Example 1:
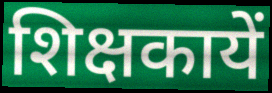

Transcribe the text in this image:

शिक्षकायें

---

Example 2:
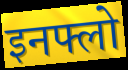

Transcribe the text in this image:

इनफ्लो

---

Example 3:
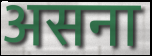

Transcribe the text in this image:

असना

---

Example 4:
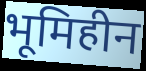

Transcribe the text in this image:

भूमिहीन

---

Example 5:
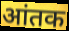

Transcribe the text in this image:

आंतक